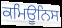
ਕਮਿਊਨਿਸ